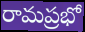
రామప్రభో